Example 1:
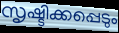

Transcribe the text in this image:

സൃഷ്ടിക്കപ്പെടും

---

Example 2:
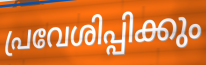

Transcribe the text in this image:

പ്രവേശിപ്പിക്കും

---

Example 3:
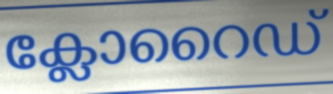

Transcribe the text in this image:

ക്ലോറൈഡ്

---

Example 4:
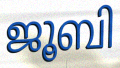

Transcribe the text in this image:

ജൂബി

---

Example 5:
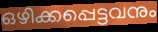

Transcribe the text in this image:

ഒഴിക്കപ്പെട്ടവനും